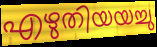
എഴുതിയയച്ചു